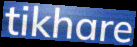
tikhare